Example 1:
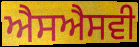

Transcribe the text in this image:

ਐਸਐਸਵੀ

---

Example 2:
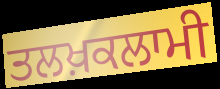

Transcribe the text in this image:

ਤਲਖ਼ਕਲਾਮੀ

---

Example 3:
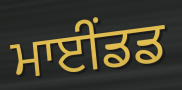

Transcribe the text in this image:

ਮਾਈਂਡਡ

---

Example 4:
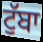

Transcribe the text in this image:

ਟੁੱਬਾ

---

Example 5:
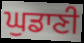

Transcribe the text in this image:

ਘੁਡਾਣੀ